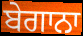
ਬੇਗਾਨਾ